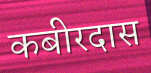
कबीरदास